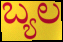
ಬ್ಯಲ